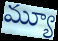
మ్యూ